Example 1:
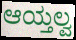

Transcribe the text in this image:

ಆಯ್ತಲ್ವ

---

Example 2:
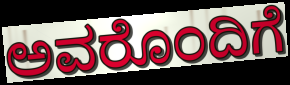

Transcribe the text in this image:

ಅವರೊಂದಿಗೆ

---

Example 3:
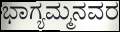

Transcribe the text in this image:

ಭಾಗ್ಯಮ್ಮನವರ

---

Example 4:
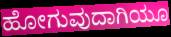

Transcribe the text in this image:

ಹೋಗುವುದಾಗಿಯೂ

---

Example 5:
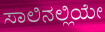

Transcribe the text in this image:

ಸಾಲಿನಲ್ಲಿಯೇ